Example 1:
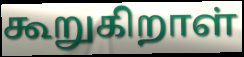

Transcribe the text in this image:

கூறுகிறாள்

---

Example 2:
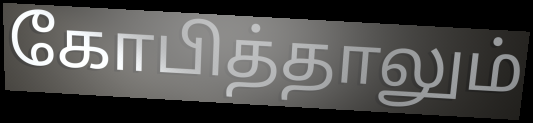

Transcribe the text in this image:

கோபித்தாலும்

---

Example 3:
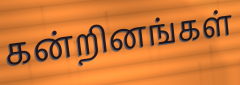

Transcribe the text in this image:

கன்றினங்கள்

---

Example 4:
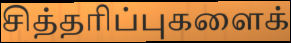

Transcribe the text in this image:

சித்தரிப்புகளைக்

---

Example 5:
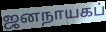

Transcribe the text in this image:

ஜனநாயகப்